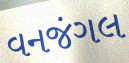
વનજંગલ